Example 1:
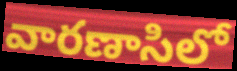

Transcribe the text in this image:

వారణాసిలో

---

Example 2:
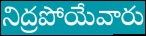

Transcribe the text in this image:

నిద్రపోయేవారు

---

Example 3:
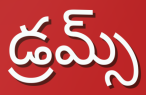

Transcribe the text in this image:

డ్రమ్స్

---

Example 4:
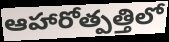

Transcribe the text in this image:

ఆహారోత్పత్తిలో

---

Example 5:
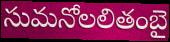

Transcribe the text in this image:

సుమనోలలితంబై